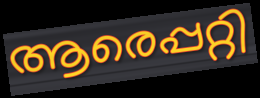
ആരെപ്പറ്റി